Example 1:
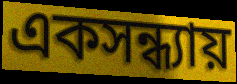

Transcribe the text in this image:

একসন্ধ্যায়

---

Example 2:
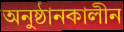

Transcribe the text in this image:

অনুষ্ঠানকালীন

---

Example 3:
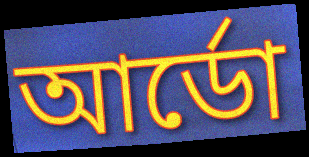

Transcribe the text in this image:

আর্ডো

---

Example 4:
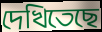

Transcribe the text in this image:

দেখিতেছে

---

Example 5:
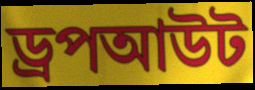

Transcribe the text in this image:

ড্রপআউট